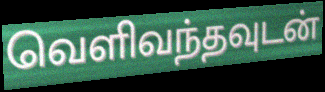
வெளிவந்தவுடன்